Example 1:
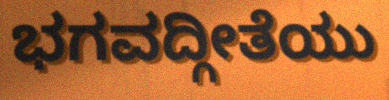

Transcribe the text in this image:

ಭಗವದ್ಗೀತೆಯು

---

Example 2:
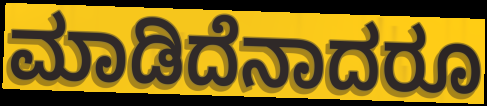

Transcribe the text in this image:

ಮಾಡಿದೆನಾದರೂ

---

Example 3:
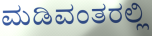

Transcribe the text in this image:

ಮಡಿವಂತರಲ್ಲಿ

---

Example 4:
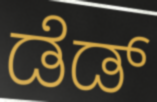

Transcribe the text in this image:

ಡೆಡ್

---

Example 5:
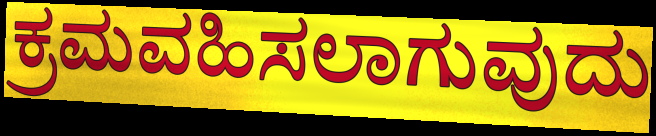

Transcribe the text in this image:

ಕ್ರಮವಹಿಸಲಾಗುವುದು